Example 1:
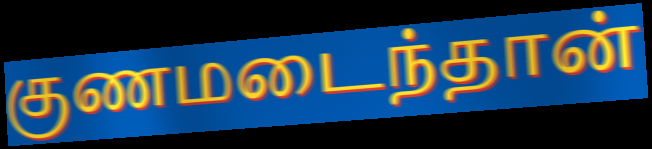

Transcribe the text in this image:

குணமடைந்தான்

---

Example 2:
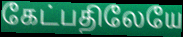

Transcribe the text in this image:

கேட்பதிலேயே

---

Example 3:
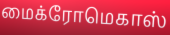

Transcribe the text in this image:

மைக்ரோமெகாஸ்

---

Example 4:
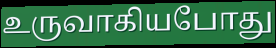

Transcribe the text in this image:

உருவாகியபோது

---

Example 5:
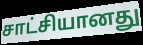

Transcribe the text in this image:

சாட்சியானது